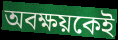
অবক্ষয়কেই